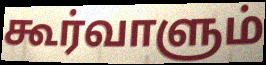
கூர்வாளும்